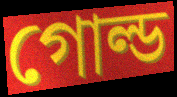
গোল্ড